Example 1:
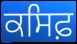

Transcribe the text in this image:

ਕਸਿਫ਼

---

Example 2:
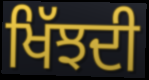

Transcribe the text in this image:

ਖਿੱਝਦੀ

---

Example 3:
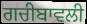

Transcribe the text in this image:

ਗਚੀਬਾਵਲੀ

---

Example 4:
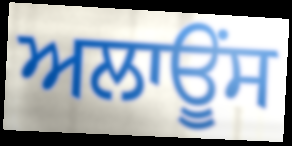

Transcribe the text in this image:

ਅਲਾਊੰਸ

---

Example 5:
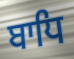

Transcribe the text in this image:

ਬਾਧਿ